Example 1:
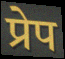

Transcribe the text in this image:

प्रेप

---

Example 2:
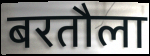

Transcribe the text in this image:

बरतौला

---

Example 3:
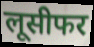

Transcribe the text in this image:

लूसीफर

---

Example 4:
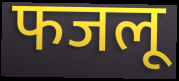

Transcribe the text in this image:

फजलू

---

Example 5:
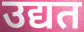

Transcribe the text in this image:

उद्यत